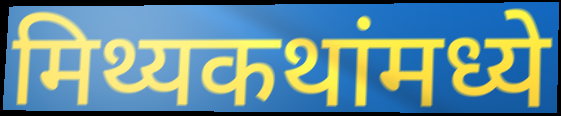
मिथ्यकथांमध्ये